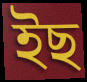
ইছ